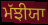
ਮੱਝੀਯਾ